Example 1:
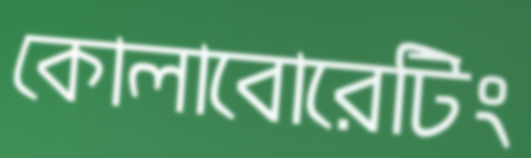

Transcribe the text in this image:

কোলাবোরেটিং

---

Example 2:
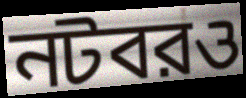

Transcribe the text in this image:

নটবরও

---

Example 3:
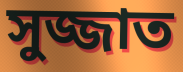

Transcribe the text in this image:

সুজ্জাত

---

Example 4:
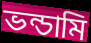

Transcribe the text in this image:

ভন্ডামি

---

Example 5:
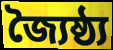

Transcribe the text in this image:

জ্যৈষ্ঠ্য